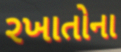
રખાતોના